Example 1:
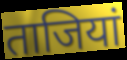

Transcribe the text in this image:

ताजियां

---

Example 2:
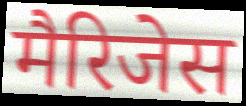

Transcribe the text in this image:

मैरिजेस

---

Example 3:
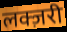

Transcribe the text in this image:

लक्ज़री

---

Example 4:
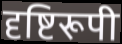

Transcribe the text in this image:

दृष्टिरूपी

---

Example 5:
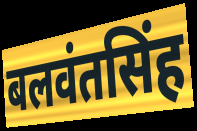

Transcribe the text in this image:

बलवंतसिंह